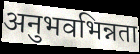
अनुभवभिन्नता